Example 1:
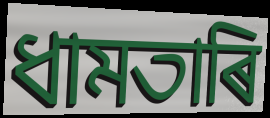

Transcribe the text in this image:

ধামতাৰি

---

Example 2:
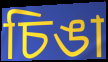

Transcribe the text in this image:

চিঙা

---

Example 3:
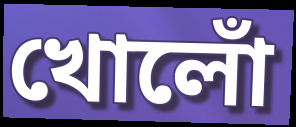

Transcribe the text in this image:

খোলোঁ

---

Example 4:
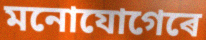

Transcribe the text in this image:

মনোযোগেৰে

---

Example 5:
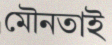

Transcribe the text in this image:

মৌনতাই